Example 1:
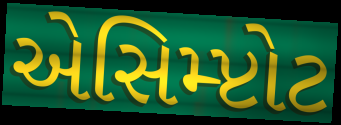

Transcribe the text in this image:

એસિમ્પ્ટોટ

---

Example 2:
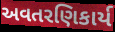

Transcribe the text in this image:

અવતરણિકાર્ય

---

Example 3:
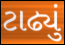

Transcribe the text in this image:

ટાઢ્યું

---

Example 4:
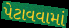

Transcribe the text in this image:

પેટાવવામાં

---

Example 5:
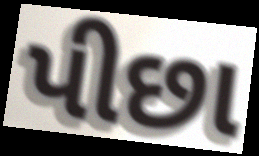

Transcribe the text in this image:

પીછા